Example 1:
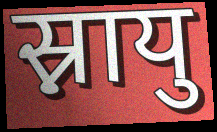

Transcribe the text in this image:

स्नायु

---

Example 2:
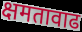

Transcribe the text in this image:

क्षमतावाढ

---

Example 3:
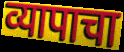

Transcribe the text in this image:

व्यापाचा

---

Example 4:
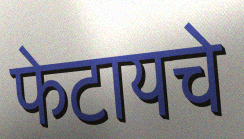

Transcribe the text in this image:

फेटायचे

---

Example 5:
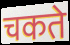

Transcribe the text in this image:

चकते